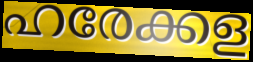
ഹരേക്കള